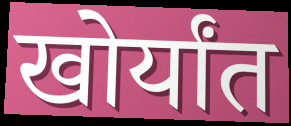
खोर्यांत